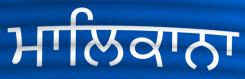
ਮਾਲਿਕਾਨਾ